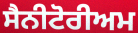
ਸੈਨੀਟੋਰੀਅਮ